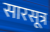
सारसूत्र